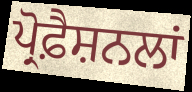
ਪ੍ਰੋਫ਼ੈਸ਼ਨਲਾਂ